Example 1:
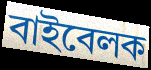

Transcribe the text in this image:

বাইবেলক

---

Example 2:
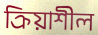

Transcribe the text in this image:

ক্ৰিয়াশীল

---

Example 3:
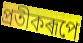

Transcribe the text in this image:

প্ৰতীকৰূপে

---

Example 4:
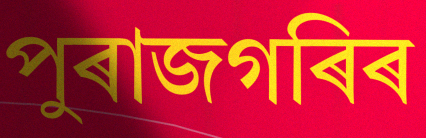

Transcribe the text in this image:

পুৰাজগৰিৰ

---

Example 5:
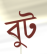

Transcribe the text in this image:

বুট